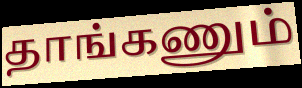
தாங்கணும்